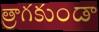
త్రాగకుండా